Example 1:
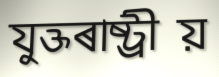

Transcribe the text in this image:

যুক্তৰাষ্ট্ৰীয়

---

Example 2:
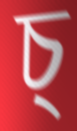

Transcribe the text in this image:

চ্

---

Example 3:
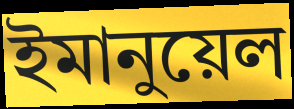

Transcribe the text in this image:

ইমানুয়েল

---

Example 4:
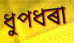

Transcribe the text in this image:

ধুপধৰা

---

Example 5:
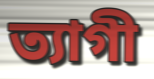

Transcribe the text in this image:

ত্যাগী